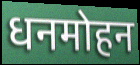
धनमोहन